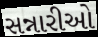
સન્નારીઓ